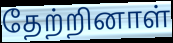
தேற்றினாள்